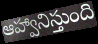
ఆహ్వానిస్తుంది